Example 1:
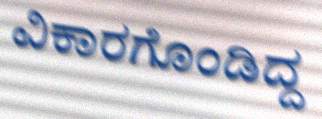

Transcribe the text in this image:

ವಿಕಾರಗೊಂಡಿದ್ದ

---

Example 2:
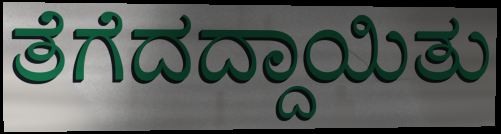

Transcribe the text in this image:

ತೆಗೆದದ್ದಾಯಿತು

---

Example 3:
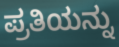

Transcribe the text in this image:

ಪ್ರತಿಯನ್ನು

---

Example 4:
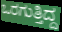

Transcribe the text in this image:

ಒರಗುತ್ತಿದ್ದ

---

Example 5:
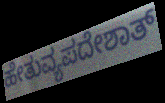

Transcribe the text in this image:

ಹೇತುವ್ಯಪದೇಶಾತ್